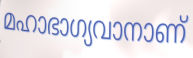
മഹാഭാഗ്യവാനാണ്